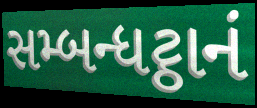
સમ્બન્ધટ્ઠાનં